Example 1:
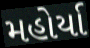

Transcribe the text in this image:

મહોર્યા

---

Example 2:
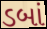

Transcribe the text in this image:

ડબાં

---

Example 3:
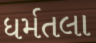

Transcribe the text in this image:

ધર્મતલા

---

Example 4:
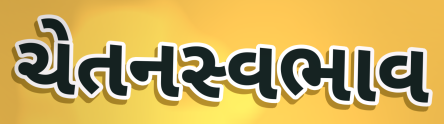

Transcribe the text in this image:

ચેતનસ્વભાવ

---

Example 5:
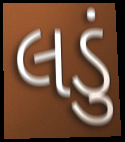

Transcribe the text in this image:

લડું